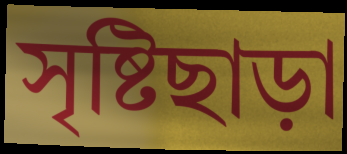
সৃষ্টিছাড়া